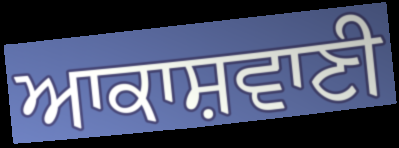
ਆਕਾਸ਼ਵਾਣੀ